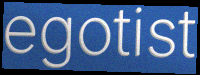
egotist